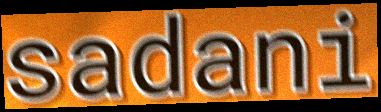
sadani